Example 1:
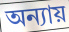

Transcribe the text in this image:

অন্যায়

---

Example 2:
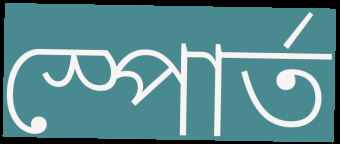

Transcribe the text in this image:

স্পোর্ত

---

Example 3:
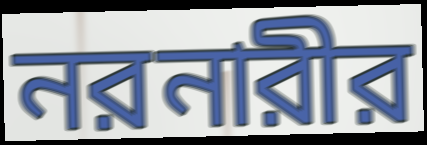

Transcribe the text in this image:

নরনারীর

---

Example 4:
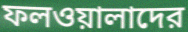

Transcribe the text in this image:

ফলওয়ালাদের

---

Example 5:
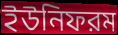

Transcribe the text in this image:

ইউনিফরম